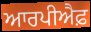
ਆਰਪੀਐਫ਼